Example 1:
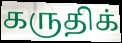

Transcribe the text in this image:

கருதிக்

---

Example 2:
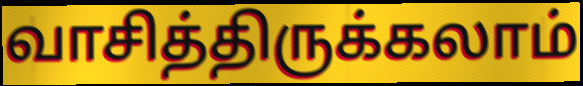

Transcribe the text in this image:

வாசித்திருக்கலாம்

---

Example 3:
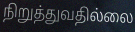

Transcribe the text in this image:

நிறுத்துவதில்லை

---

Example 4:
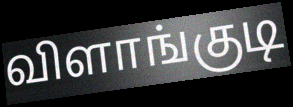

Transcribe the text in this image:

விளாங்குடி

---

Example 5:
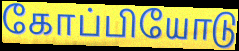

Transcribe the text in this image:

கோப்பியோடு